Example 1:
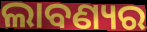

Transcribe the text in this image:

ଲାବଣ୍ୟର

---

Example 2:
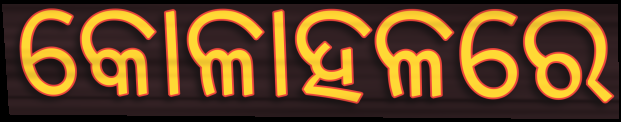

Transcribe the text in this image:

କୋଳାହଳରେ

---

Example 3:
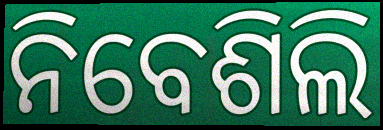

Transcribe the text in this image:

ନିବେଶିଲି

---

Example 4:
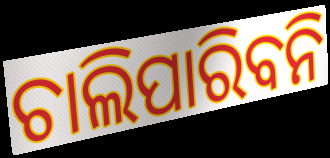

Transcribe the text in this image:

ଚାଲିପାରିବନି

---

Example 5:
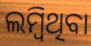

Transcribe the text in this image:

ଲମ୍ବିଥିବା